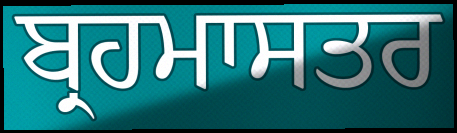
ਬ੍ਰਹਮਾਸਤਰ